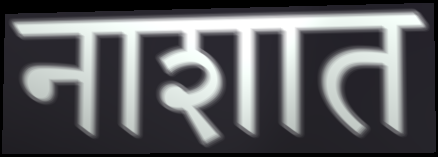
नाशात